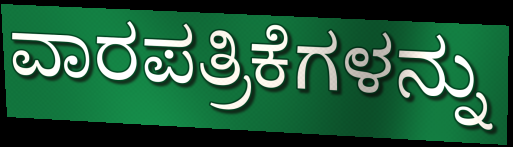
ವಾರಪತ್ರಿಕೆಗಳನ್ನು